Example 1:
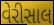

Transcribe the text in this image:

વેરીસાલ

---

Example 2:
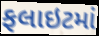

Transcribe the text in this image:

ફલાઇટમાં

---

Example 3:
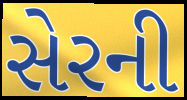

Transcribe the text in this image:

સેરની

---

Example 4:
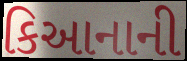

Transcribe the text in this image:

કિઆનાની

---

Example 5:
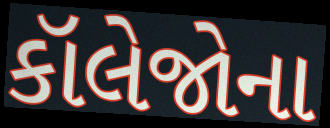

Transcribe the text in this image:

કૉલેજોના